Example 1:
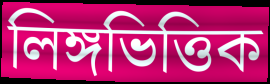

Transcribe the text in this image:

লিঙ্গভিত্তিক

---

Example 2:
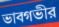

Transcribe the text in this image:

ভাবগভীর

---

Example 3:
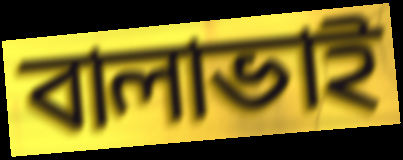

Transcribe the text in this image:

বালাভাই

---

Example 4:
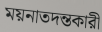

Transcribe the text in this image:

ময়নাতদন্তকারী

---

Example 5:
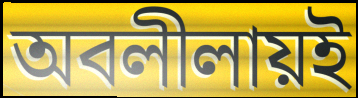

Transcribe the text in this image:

অবলীলায়ই